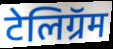
टेलिग्रॅम